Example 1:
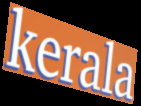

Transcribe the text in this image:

kerala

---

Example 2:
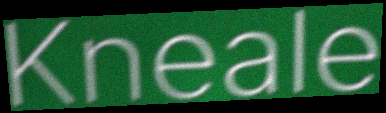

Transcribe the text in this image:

Kneale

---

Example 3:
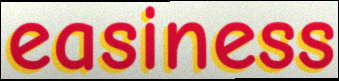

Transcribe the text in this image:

easiness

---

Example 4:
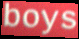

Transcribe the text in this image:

boys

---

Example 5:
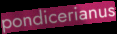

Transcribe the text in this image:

pondicerianus